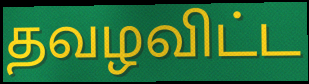
தவழவிட்ட